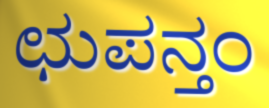
ಛುಪನ್ತಂ